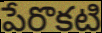
పేరొకటి